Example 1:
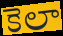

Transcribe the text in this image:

కెలా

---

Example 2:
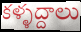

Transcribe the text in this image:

కళ్ళద్దాలు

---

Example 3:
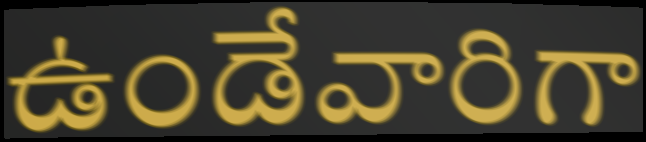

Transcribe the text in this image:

ఉండేవారిగా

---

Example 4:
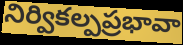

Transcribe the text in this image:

నిర్వికల్పప్రభావా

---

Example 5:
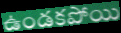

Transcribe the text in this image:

ఉండకపోయి